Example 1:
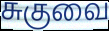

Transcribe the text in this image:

சுகுவை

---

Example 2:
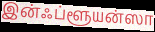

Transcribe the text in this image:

இன்ஃப்ளூயன்ஸா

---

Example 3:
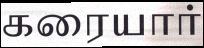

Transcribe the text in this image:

கரையார்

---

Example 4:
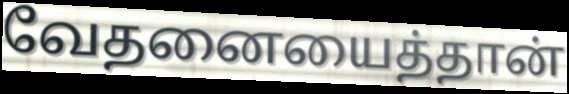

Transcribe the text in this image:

வேதனையைத்தான்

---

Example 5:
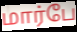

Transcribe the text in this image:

மார்பே